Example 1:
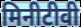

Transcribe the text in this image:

मिनीटीवी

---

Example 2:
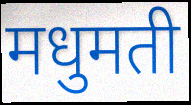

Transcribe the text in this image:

मधुमती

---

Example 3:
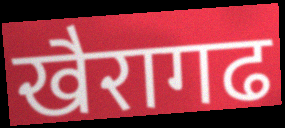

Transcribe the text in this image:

खैरागढ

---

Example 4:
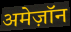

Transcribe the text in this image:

अमेज़ॉन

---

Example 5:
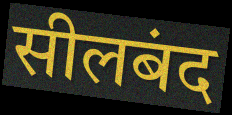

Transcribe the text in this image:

सीलबंद